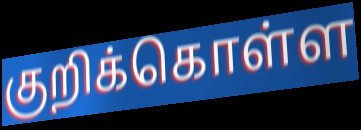
குறிக்கொள்ள